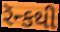
રૅન્કથી